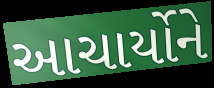
આચાર્યોને